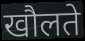
खौलते